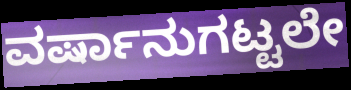
ವರ್ಷಾನುಗಟ್ಟಲೇ